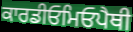
ਕਾਰਡੀਓਮਿਓਪੈਥੀ